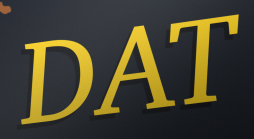
DAT